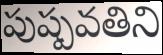
పుష్పవతిని